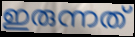
ഇരുന്നത്